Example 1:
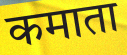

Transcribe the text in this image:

कमाता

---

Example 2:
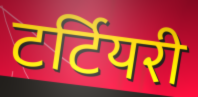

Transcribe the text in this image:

टर्टियरी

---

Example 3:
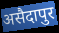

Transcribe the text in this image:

असैदापुर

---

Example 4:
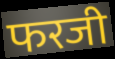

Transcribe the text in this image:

फरजी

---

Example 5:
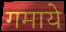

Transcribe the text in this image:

गमाये